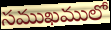
సముఖములో